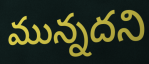
మున్నదని